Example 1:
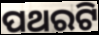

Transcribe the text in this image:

ପଥରଟି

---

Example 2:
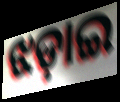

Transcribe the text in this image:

ଝଡ଼ାଇ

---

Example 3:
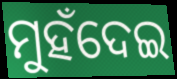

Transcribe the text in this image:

ମୁହଁଦେଇ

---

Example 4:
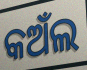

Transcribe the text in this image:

କଅଁଲ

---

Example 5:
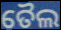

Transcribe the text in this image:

ତୈଲ